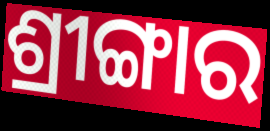
ଶ୍ରୀଙ୍ଗାର